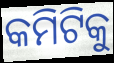
କମିଟିକୁ